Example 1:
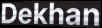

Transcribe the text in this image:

Dekhan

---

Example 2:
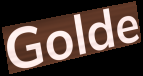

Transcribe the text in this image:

Golde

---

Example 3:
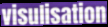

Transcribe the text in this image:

visulisation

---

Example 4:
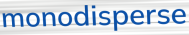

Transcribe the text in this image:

monodisperse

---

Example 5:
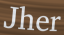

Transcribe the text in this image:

Jher